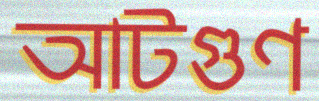
আটগুণ